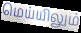
மெய்யிலும்